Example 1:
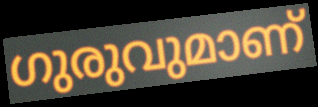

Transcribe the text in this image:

ഗുരുവുമാണ്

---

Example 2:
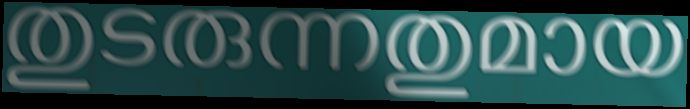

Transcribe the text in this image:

തുടരുന്നതുമായ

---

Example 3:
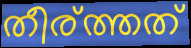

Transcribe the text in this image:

തീര്ത്തത്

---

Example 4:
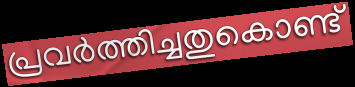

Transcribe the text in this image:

പ്രവർത്തിച്ചതുകൊണ്ട്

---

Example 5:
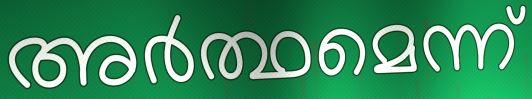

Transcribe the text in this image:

അർത്ഥമെന്ന്